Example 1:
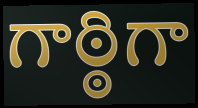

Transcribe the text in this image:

గాఠ్ఠిగా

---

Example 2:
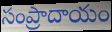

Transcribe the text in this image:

సంప్రాదాయం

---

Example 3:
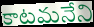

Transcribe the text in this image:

కాటమనేని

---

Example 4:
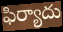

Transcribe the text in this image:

ఫిర్యాదు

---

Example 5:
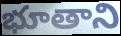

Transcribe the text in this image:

భూతాని